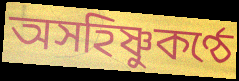
অসহিষ্ণুকণ্ঠে